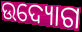
ଉଦ୍ୟୋଗ